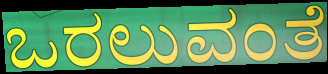
ಒರಲುವಂತೆ